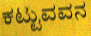
ಕಟ್ಟುವವನ